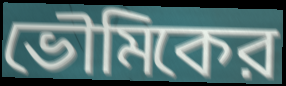
ভৌমিকের